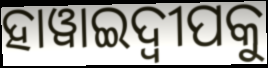
ହାୱାଇଦ୍ଵୀପକୁ